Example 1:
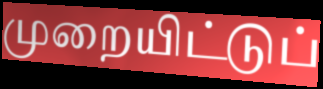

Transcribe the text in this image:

முறையிட்டுப்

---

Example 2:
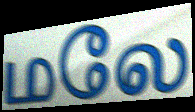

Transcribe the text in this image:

மலே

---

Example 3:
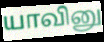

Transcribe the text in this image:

யாவினு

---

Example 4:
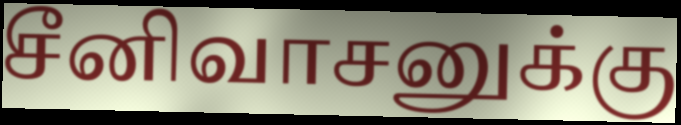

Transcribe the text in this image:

சீனிவாசனுக்கு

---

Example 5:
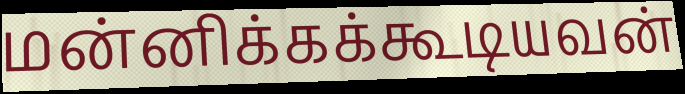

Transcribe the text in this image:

மன்னிக்கக்கூடியவன்